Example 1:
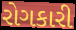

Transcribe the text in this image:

રોગકારી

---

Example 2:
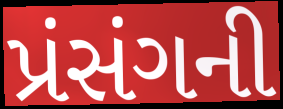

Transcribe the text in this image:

પ્રંસંગની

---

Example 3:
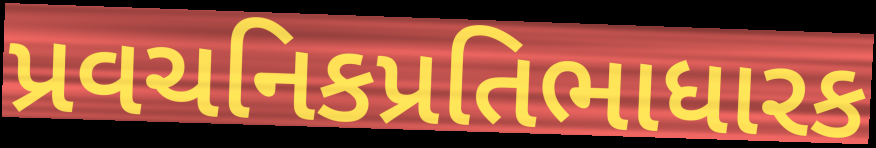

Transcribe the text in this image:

પ્રવચનિકપ્રતિભાધારક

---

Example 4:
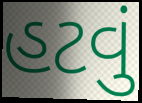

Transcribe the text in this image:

હટવું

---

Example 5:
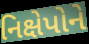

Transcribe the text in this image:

નિક્ષેપોને